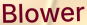
Blower